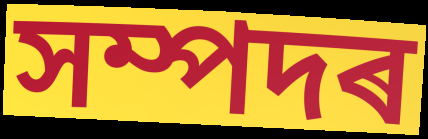
সম্পদৰ